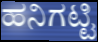
ಹನಿಗಟ್ಟಿ